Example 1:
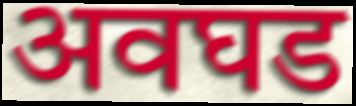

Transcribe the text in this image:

अवघड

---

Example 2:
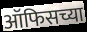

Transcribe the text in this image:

ऑफिसच्या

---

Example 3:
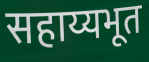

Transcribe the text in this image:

सहाय्यभूत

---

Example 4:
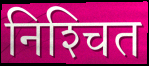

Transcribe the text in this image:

निश्चित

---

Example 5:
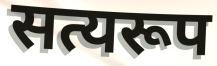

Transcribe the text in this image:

सत्यरूप